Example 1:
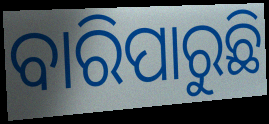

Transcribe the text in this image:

ବାରିପାରୁଛି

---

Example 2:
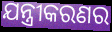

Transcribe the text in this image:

ଯନ୍ତ୍ରୀକରଣର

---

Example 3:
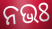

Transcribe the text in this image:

ନଭଃ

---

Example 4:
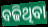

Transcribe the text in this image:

ବଢିଥିବା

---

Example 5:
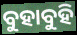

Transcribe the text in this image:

ବୁହାବୁହି